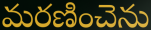
మరణించెను